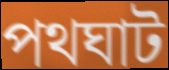
পথঘাট